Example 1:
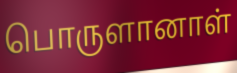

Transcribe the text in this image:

பொருளானாள்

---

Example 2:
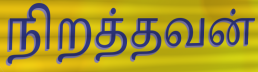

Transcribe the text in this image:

நிறத்தவன்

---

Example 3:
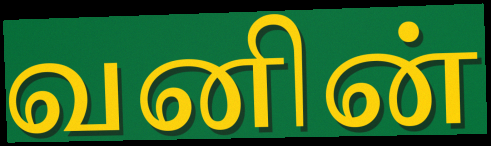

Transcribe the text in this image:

வனின்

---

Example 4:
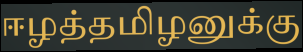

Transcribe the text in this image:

ஈழத்தமிழனுக்கு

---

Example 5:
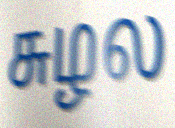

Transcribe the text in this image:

சுழல